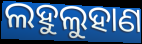
ଲହୁଲୁହାଣ